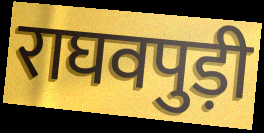
राघवपुड़ी